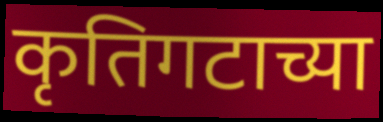
कृतिगटाच्या